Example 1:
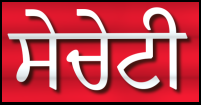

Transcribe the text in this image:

ਸੇਚੇਟੀ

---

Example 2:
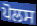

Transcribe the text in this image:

ਪੋਲਸ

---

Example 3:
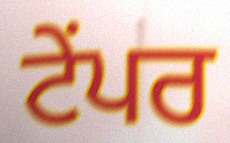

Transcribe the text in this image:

ਟੇਂਪਰ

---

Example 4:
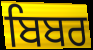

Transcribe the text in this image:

ਬਿਬਰ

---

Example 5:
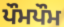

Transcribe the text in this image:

ਪੌਮਪੌਮ